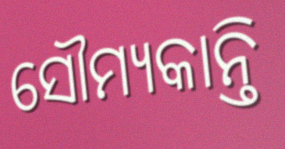
ସୌମ୍ୟକାନ୍ତି